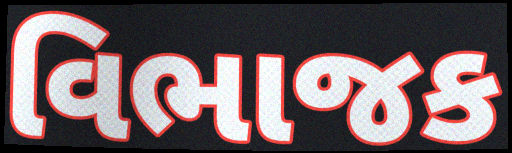
વિભાજક